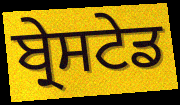
ਬ੍ਰੇਸਟੇਡ